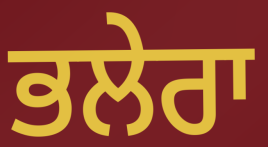
ਭਲੇਰਾ